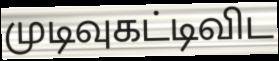
முடிவுகட்டிவிட